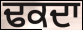
ਢਕਦਾ